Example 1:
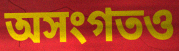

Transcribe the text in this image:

অসংগতও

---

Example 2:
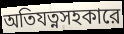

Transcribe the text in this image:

অতিযত্নসহকারে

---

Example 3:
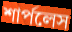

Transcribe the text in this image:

শার্পলেস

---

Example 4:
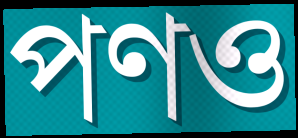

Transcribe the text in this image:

পণও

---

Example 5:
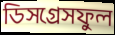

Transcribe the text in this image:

ডিসগ্রেসফুল